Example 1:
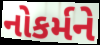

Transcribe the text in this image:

નોકર્મને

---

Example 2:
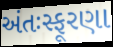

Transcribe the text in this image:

અંતઃસ્ફૂરણા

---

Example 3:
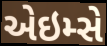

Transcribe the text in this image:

એઇમ્સે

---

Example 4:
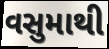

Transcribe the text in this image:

વસુમાથી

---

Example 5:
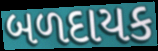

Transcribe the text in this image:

બળદાયક